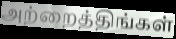
அற்றைத்திங்கள்